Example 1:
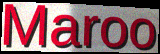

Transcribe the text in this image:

Maroo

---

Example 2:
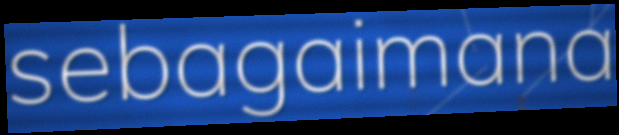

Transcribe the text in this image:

sebagaimana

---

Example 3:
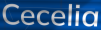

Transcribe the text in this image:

Cecelia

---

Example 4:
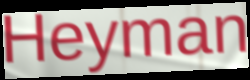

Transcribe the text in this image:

Heyman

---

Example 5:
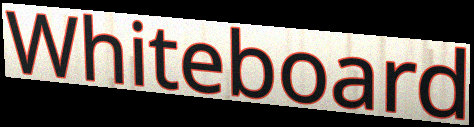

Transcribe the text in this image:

Whiteboard